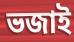
ভজাই